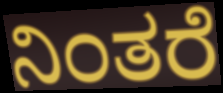
ನಿಂತರೆ